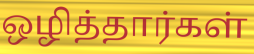
ஒழித்தார்கள்